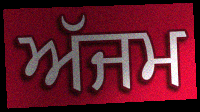
ਅੱਜਮ